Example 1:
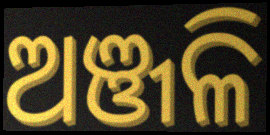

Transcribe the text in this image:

ଅଞ୍ଜଳି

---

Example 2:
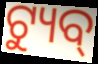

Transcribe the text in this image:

ଟ୍ୟୁବ୍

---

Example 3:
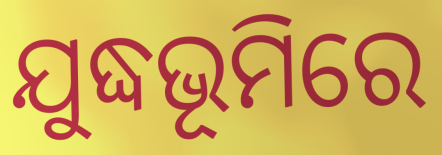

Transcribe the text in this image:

ଯୁଦ୍ଧଭୂମିରେ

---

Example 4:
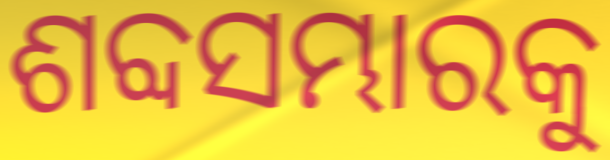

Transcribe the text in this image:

ଶବ୍ଦସମ୍ଭାରକୁ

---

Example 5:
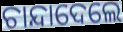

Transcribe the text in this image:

ଚାନ୍ଦାଦେଲେ